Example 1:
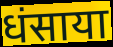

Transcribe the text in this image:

धंसाया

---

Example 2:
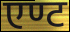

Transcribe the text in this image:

एण्ट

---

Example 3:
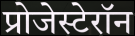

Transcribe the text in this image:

प्रोजेस्टेरॉन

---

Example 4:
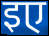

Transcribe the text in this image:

इए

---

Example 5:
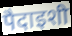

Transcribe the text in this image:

पैदाइशी